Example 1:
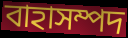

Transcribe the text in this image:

বাহাসম্পদ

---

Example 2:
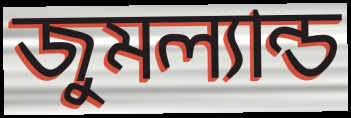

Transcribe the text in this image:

জুমল্যান্ড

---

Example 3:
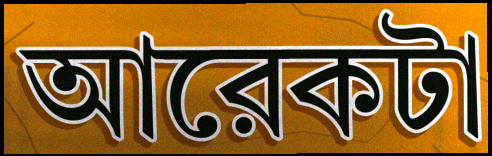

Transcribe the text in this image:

আরেকটা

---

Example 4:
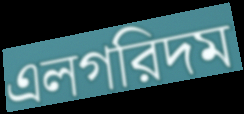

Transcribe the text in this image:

এলগরিদম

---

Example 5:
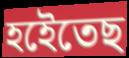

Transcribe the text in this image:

হইেতেছ